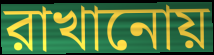
রাখানোয়